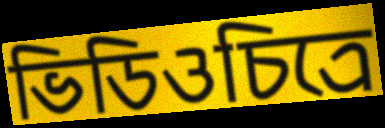
ভিডিওচিত্রে